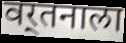
वर्तनाला